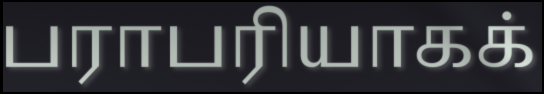
பராபரியாகக்